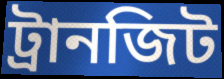
ট্রানজিট